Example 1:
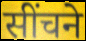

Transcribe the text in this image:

सींचने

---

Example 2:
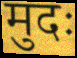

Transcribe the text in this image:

मुदः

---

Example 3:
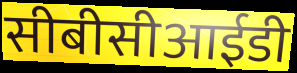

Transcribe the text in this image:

सीबीसीआईडी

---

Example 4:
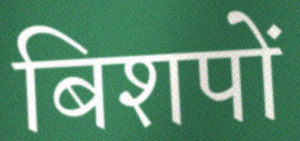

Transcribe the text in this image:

बिशपों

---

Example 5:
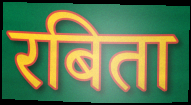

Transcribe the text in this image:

रबिता